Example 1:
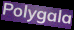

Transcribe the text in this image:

Polygala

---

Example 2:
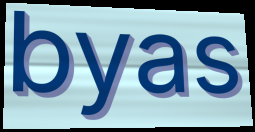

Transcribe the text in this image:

byas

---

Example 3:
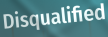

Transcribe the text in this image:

Disqualified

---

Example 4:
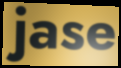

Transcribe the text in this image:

jase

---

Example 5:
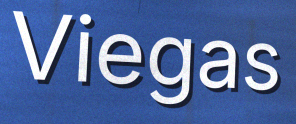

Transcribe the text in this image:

Viegas